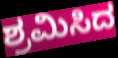
ಶ್ರಮಿಸಿದ